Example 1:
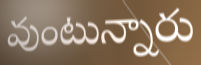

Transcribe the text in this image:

వుంటున్నారు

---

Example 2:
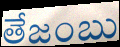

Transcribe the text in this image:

తేజంబు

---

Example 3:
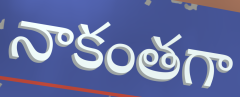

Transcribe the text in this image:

నాకంతగా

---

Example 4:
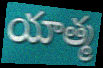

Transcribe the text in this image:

యాత్మ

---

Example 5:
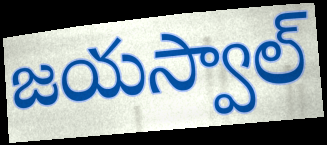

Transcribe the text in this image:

జయస్వాల్